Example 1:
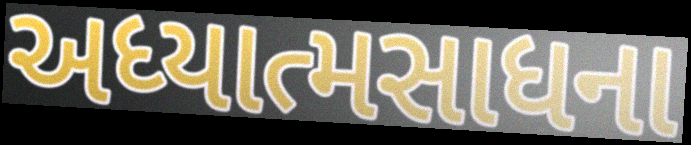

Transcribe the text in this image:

અધ્યાત્મસાધના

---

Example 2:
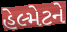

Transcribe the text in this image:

હેલ્મેટને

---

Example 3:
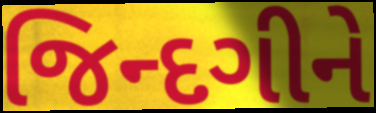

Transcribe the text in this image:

જિન્દગીને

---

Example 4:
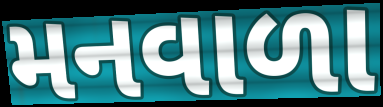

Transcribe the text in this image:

મનવાળા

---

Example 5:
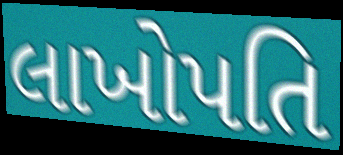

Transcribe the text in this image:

લાખોપતિ